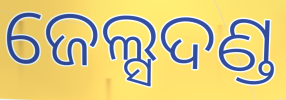
ଜେଲ୍ସଦଣ୍ଡ